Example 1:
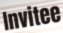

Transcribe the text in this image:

Invitee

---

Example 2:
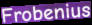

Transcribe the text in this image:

Frobenius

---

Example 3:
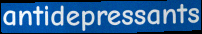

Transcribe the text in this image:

antidepressants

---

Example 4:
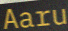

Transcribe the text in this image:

Aaru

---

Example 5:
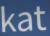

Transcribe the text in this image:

kat